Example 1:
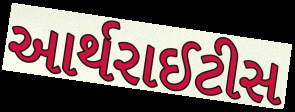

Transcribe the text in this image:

આર્થરાઈટીસ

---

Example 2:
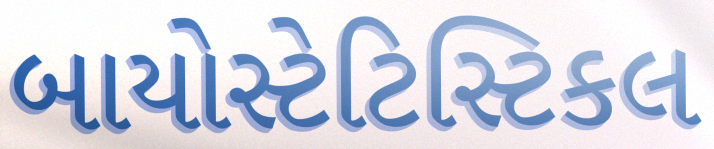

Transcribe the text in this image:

બાયોસ્ટેટિસ્ટિકલ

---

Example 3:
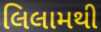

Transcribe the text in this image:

લિલામથી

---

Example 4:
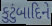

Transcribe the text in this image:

કુટુંબાદિને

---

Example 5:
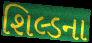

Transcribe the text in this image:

શિલ્ડના